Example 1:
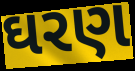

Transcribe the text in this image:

ઘરણ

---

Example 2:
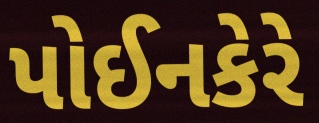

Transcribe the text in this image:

પોઈનકેરે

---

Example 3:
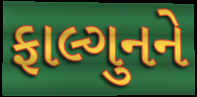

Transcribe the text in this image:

ફાલ્ગુનને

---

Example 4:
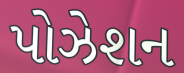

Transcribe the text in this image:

પોઝેશન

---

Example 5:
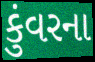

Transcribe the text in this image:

કુંવરના